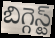
బిగ్గెస్ట్